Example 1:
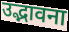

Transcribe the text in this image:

उद्भावना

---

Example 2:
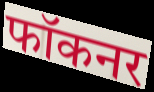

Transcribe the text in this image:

फॉकनर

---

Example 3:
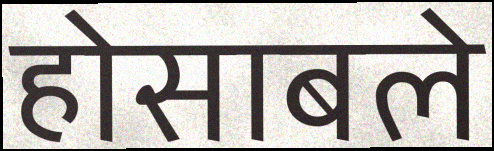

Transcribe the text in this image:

होसाबले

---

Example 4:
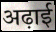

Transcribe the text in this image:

अढ़ाई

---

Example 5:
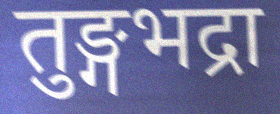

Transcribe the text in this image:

तुङ्गभद्रा